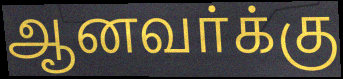
ஆனவர்க்கு